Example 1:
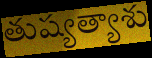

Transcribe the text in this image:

తుష్యత్యాశు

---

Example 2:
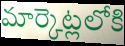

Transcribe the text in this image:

మార్కెట్లలోకి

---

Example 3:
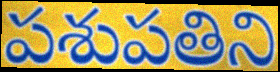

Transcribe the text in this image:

పశుపతిని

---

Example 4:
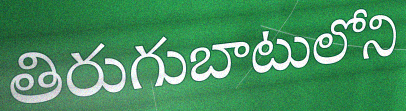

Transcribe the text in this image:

తిరుగుబాటులోని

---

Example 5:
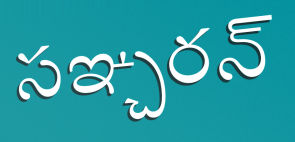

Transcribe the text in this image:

సఞ్చరన్